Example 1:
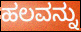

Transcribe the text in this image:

ಹಲವನ್ನು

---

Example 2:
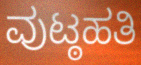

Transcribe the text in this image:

ವುಟ್ಠಹತಿ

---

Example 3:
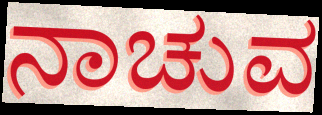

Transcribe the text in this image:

ನಾಚುವ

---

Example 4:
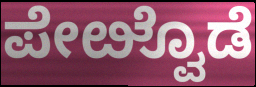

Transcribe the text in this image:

ಪೇೞ್ವೊಡೆ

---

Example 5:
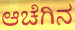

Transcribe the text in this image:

ಆಚೆಗಿನ